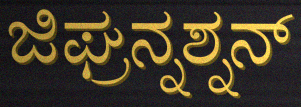
ಜಿಘ್ರನ್ನಶ್ನನ್